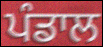
ਪੰਡਾਲ